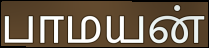
பாமயன்